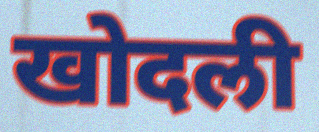
खोदली